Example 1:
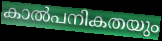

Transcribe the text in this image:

കാൽപനികതയും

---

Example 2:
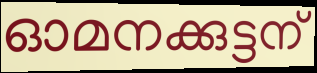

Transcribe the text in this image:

ഓമനക്കുട്ടന്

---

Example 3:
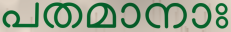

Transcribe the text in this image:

പതമാനാഃ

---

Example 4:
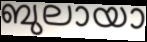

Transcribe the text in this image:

ബുലായാ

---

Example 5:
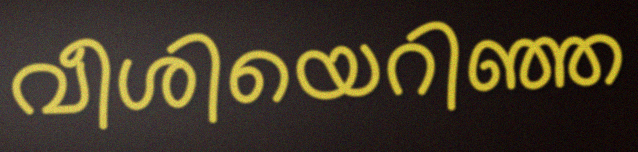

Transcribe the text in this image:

വീശിയെറിഞ്ഞ